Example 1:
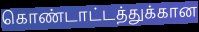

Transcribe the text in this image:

கொண்டாட்டத்துக்கான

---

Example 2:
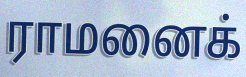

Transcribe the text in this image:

ராமனைக்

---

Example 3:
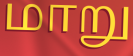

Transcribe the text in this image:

மாறு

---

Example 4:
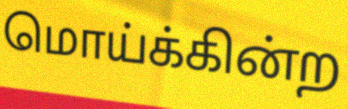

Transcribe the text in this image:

மொய்க்கின்ற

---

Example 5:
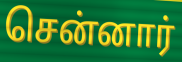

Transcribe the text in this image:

சென்னார்